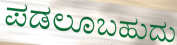
ಪಡಲೂಬಹುದು